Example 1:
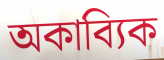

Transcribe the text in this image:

অকাব্যিক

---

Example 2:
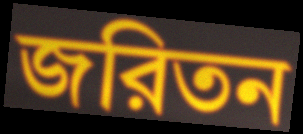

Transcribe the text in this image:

জরিতন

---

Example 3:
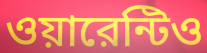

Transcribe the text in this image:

ওয়ারেন্টিও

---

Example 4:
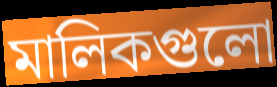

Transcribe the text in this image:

মালিকগুলো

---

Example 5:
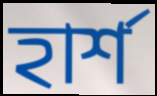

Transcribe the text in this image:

হার্শ